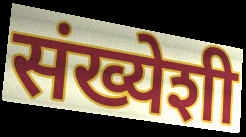
संख्येशी